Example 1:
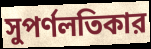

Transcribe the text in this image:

সুপর্ণলতিকার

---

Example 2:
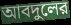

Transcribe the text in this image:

আবদুলের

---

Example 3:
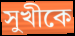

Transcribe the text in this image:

সুখীকে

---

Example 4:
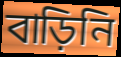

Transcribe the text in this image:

বাড়িনি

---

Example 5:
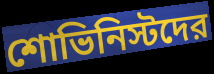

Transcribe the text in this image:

শোভিনিস্টদের